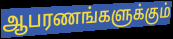
ஆபரணங்களுக்கும்